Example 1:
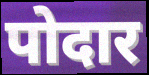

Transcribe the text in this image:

पोदार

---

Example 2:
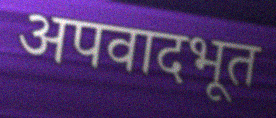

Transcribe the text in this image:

अपवादभूत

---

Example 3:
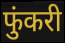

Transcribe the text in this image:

फुंकरी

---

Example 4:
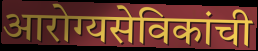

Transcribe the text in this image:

आरोग्यसेविकांची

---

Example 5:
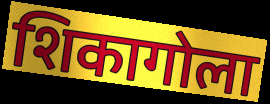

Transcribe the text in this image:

शिकागोला